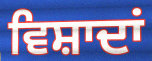
ਵਿਸ਼ਾਦਾਂ